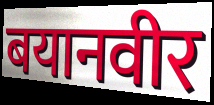
बयानवीर